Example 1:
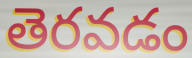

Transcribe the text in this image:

తెరవడం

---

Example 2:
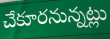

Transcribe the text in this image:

చేకూరనున్నట్లు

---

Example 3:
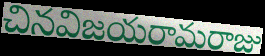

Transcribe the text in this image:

చినవిజయరామరాజు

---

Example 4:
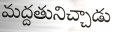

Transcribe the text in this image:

మద్దతునిచ్చాడు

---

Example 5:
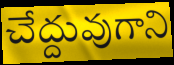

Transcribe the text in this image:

చేద్దువుగాని